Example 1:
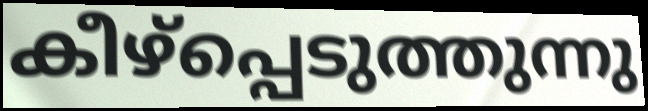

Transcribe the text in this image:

കീഴ്പ്പെടുത്തുന്നു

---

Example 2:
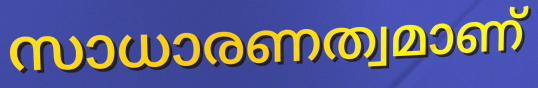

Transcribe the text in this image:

സാധാരണത്വമാണ്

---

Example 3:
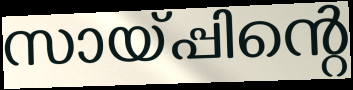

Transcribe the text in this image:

സായ്പ്പിന്റെ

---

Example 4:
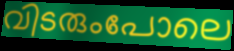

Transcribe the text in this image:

വിടരുംപോലെ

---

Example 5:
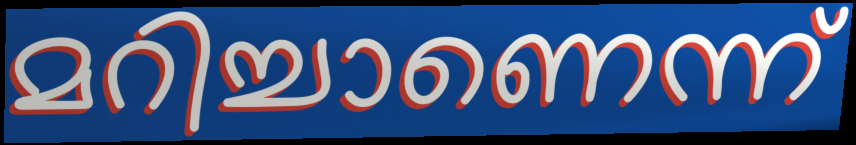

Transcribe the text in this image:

മറിച്ചാണെന്ന്